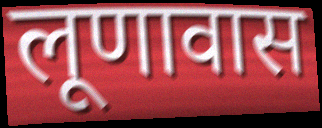
लूणावास